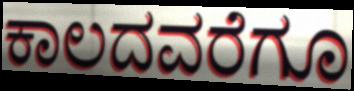
ಕಾಲದವರೆಗೂ